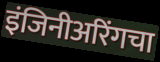
इंजिनीअरिंगचा